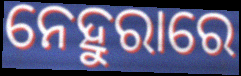
ନେହୁରାରେ